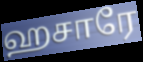
ஹசாரே